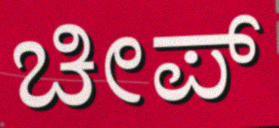
ಚೀಪ್